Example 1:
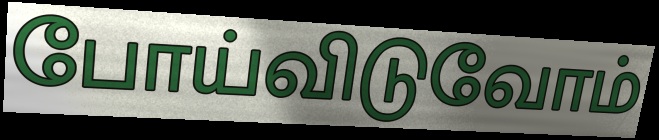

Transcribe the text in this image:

போய்விடுவோம்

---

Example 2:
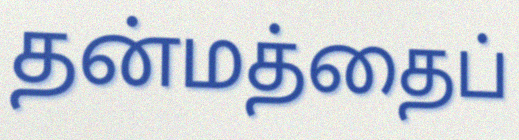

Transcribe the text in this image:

தன்மத்தைப்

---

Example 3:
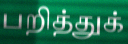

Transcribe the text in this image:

பறித்துக்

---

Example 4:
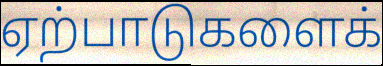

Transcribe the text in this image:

ஏற்பாடுகளைக்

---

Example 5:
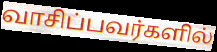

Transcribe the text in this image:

வாசிப்பவர்களில்